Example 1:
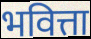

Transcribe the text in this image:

भवित्ता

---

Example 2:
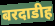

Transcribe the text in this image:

बरदाडीह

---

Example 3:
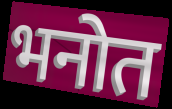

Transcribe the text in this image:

भनोत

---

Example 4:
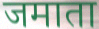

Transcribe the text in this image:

जमाता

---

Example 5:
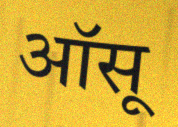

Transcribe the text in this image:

ऑसू